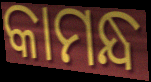
କାମନ୍ଧ